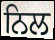
ਨਿਲ